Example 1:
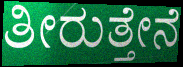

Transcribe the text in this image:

ತೀರುತ್ತೇನೆ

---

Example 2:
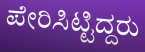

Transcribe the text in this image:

ಪೇರಿಸಿಟ್ಟಿದ್ದರು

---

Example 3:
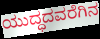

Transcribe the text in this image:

ಯುದ್ಧದವರೆಗಿನ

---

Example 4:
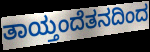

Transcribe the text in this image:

ತಾಯ್ತಂದೆತನದಿಂದ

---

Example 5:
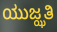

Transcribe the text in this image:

ಯುಜ್ಝತಿ